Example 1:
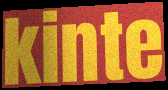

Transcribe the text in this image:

kinte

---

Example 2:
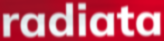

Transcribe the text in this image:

radiata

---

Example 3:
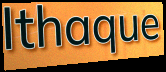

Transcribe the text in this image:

Ithaque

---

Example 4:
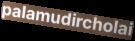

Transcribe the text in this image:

palamudircholai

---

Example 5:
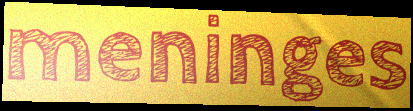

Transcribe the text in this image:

meninges